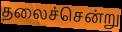
தலைச்சென்று